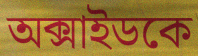
অক্সাইডকে